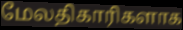
மேலதிகாரிகளாக